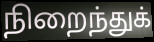
நிறைந்துக்